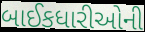
બાઈકધારીઓની